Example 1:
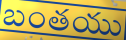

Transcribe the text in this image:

బంతయు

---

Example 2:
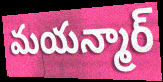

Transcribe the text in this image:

మయన్మార్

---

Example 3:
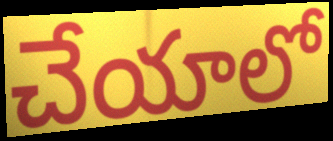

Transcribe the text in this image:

చేయాలో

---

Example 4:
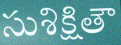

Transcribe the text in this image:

సుశిక్షితౌ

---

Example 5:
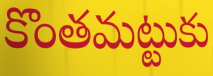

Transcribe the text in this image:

కొంతమట్టుకు